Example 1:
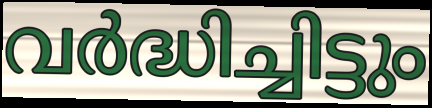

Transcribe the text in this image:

വർദ്ധിച്ചിട്ടും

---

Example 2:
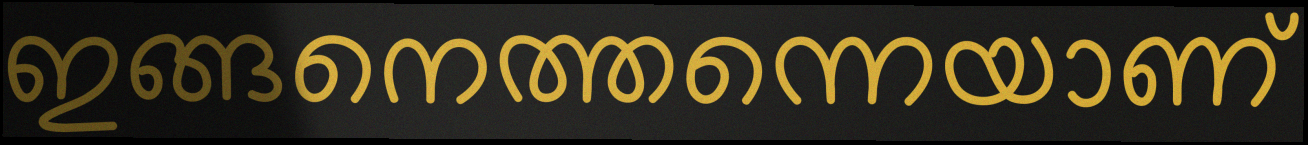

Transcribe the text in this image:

ഇങ്ങനെത്തന്നെയാണ്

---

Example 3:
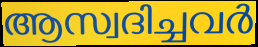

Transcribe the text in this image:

ആസ്വദിച്ചവർ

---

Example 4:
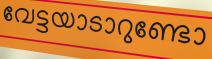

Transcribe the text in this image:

വേട്ടയാടാറുണ്ടോ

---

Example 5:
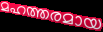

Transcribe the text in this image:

മഹത്തരമായ